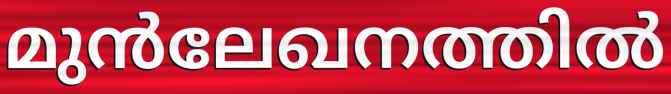
മുൻലേഖനത്തിൽ